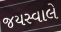
જયસ્વાલે